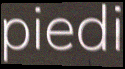
piedi